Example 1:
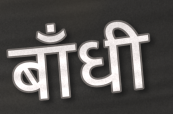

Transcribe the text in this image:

बाँधी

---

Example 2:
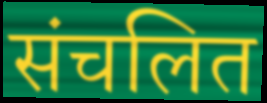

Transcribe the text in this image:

संचलित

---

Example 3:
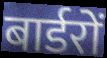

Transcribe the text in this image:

बार्डरों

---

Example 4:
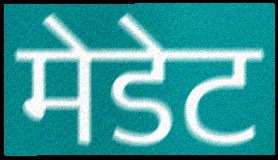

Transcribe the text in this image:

मेडेट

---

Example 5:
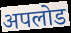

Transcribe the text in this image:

अपलोड